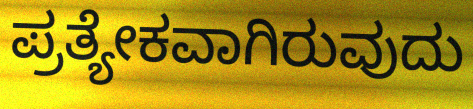
ಪ್ರತ್ಯೇಕವಾಗಿರುವುದು